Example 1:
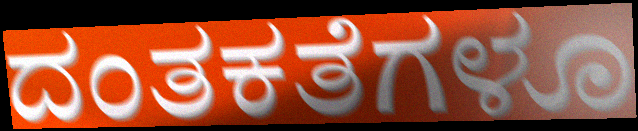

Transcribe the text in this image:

ದಂತಕತೆಗಳೂ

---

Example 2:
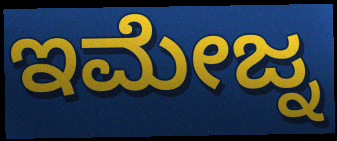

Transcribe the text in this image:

ಇಮೇಜ್ನ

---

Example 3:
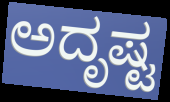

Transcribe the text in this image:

ಅದೃಷ್ಟ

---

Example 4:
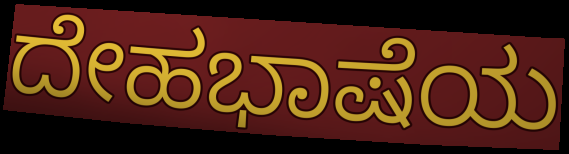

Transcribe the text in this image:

ದೇಹಭಾಷೆಯ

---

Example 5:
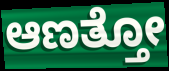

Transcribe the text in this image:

ಆಣತ್ತೋ